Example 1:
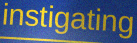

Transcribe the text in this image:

instigating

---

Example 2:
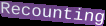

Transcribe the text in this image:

Recounting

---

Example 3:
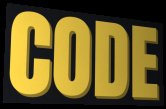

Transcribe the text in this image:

CODE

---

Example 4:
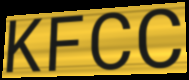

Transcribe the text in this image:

KFCC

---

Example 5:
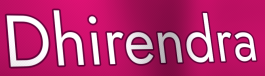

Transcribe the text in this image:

Dhirendra